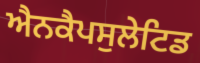
ਐਨਕੈਪਸੁਲੇਟਿਡ